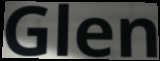
Glen